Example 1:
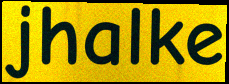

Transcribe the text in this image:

jhalke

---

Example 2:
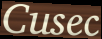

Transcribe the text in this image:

Cusec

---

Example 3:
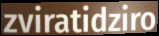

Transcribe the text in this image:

zviratidziro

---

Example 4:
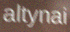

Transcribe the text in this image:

altynai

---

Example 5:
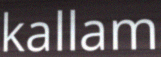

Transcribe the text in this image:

kallam